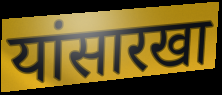
यांसारखा